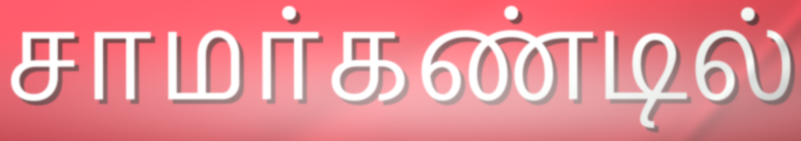
சாமர்கண்டில்